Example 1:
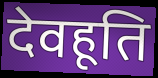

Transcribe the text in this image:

देवहूति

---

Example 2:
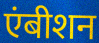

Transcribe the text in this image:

एंबीशन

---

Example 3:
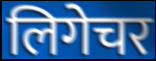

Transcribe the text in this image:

लिगेचर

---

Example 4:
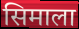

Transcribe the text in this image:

सिमाला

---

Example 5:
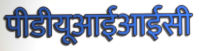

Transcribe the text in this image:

पीडीयूआईआईसी